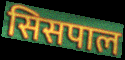
सिसपाल